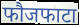
फौजफाटा